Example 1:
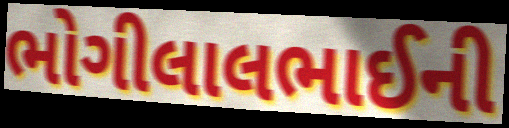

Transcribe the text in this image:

ભોગીલાલભાઈની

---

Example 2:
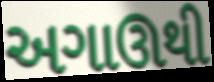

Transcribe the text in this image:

અગાઊથી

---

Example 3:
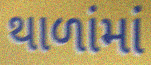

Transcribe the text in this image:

થાળાંમાં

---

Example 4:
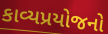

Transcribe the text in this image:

કાવ્યપ્રયોજનો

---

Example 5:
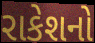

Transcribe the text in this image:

રાકેશનો